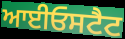
ਆਈਓਸਟੈਟ